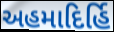
અહમાદિર્હિ